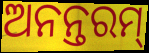
ଅନନ୍ତରମ୍